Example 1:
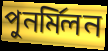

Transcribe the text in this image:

পুনর্মিলন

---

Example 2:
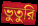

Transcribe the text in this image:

ভুতুরি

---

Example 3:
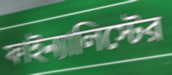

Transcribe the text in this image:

ফাইন্যালিস্টের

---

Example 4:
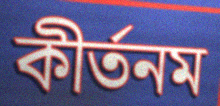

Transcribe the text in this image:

কীর্তনম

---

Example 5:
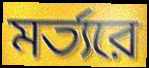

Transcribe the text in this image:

মর্ত্যরে